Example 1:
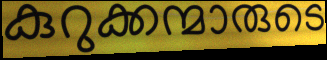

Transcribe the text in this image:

കുറുക്കന്മാരുടെ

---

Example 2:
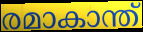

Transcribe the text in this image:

രമാകാന്ത്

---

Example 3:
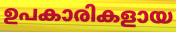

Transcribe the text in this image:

ഉപകാരികളായ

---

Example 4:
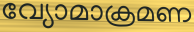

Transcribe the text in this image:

വ്യോമാക്രമണ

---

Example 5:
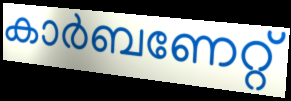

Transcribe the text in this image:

കാർബണേറ്റ്